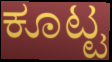
ಕೂಟ್ಟ